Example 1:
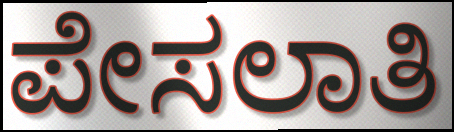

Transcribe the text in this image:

ಪೇಸಲಾತಿ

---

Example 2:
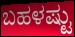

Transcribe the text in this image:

ಬಹಳಷ್ಟು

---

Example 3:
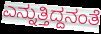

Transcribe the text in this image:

ಎನ್ನುತ್ತಿದ್ದನಂತೆ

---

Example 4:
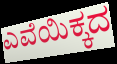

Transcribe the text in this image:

ಎವೆಯಿಕ್ಕದ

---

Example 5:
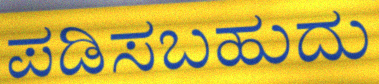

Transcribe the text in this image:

ಪಡಿಸಬಹುದು